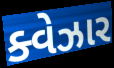
ક્વેઝાર